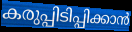
കരുപ്പിടിപ്പിക്കാൻ